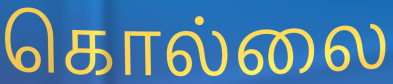
கொல்லை